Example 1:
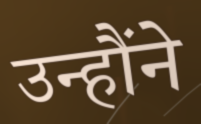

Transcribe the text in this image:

उन्हौंने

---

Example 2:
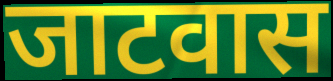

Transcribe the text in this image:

जाटवास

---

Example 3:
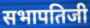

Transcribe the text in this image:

सभापतिजी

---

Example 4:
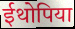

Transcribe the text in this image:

ईथोपिया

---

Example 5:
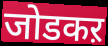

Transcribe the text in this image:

जोडकऱ